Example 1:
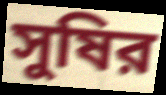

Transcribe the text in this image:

সুষির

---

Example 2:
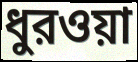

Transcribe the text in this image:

ধুরওয়া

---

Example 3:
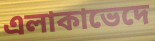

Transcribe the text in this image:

এলাকাভেদে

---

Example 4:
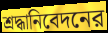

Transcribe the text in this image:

শ্রদ্ধানিবেদনের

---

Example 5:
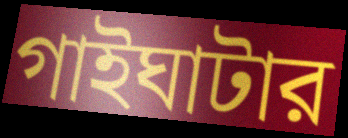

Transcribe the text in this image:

গাইঘাটার